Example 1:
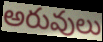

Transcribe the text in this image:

అరువులు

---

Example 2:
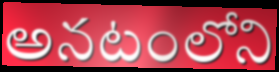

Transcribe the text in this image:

అనటంలోని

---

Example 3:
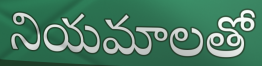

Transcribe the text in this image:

నియమాలతో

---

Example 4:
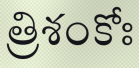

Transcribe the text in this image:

త్రిశంకోః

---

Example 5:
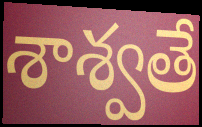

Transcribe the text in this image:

శాశ్వతే